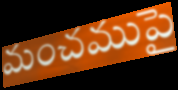
మంచముపై